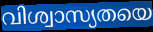
വിശ്വാസ്യതയെ